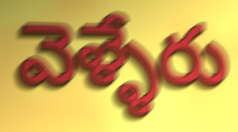
వెళ్ళేరు